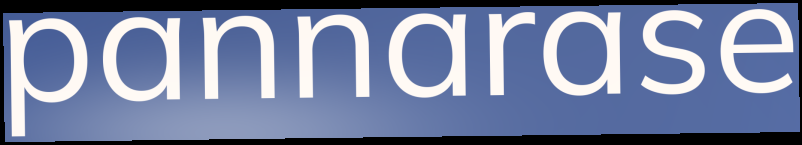
pannarase